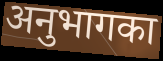
अनुभागका